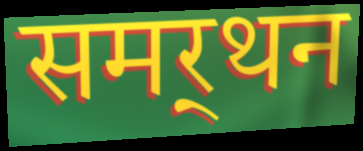
समर्थन